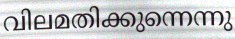
വിലമതിക്കുന്നെന്നു